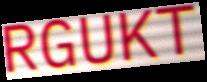
RGUKT